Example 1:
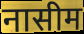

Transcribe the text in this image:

नासीम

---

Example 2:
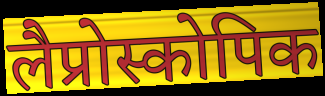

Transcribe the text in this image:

लैप्रोस्कोपिक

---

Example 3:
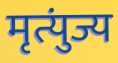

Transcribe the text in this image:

मृत्युंज्य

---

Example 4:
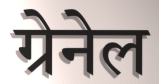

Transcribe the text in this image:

ग्रेनेल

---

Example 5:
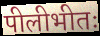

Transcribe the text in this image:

पीलीभीतः